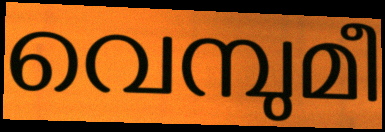
വെമ്പുമീ